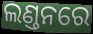
ଲଣ୍ଡନରେ